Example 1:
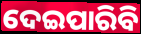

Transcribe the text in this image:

ଦେଇପାରିବି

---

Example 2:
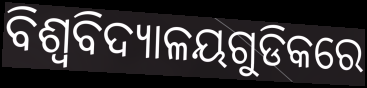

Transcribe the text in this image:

ବିଶ୍ୱବିଦ୍ୟାଳୟଗୁଡିକରେ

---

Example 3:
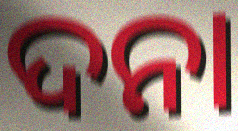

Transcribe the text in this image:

ଦନା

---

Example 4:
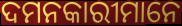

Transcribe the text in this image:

ଦମନକାରୀମାନେ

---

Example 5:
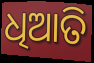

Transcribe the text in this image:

ଧିଆତି